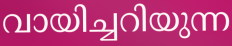
വായിച്ചറിയുന്ന